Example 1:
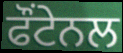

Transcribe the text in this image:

ਫੌਂਟੇਨਲ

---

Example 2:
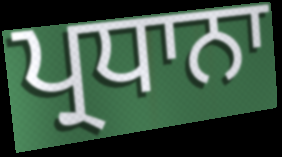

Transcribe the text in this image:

ਪ੍ਰਧਾਨਾ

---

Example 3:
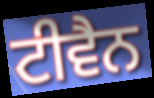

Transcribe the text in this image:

ਟੀਵੈਨ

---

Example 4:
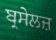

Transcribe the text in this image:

ਬ੍ਰਸੇਲਜ਼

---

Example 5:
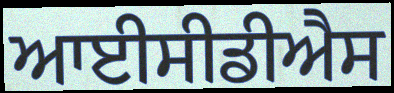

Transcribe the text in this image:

ਆਈਸੀਡੀਐਸ